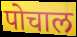
पोचाल